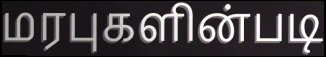
மரபுகளின்படி